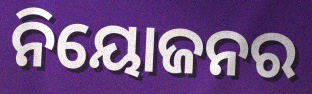
ନିୟୋଜନର